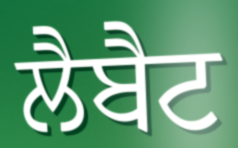
ਲੈਬੈਟ